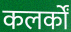
कलर्कों